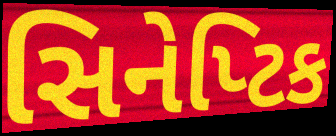
સિનેપ્ટિક